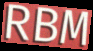
RBM